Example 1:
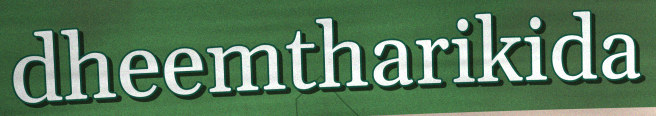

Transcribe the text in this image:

dheemtharikida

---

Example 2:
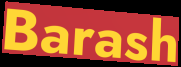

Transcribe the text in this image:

Barash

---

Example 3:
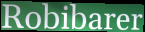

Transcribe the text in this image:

Robibarer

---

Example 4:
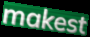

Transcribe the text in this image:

makest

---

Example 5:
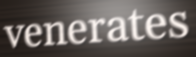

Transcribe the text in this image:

venerates